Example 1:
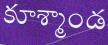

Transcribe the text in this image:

కూశ్మాండ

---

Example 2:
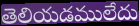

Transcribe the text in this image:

తెలియడములేదు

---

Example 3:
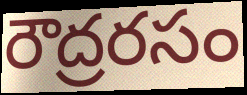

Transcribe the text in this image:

రౌద్రరసం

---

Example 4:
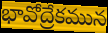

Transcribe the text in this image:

భావోద్రేకమున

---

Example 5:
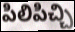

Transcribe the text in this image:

పిలిపిచ్చి